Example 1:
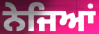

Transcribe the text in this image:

ਨੇਜਿਆਂ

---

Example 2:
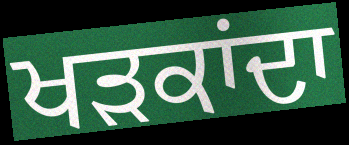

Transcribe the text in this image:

ਖੜਕਾਂਦਾ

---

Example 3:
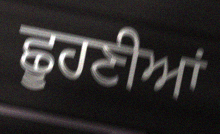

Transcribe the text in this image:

ਛੂਹਣੀਆਂ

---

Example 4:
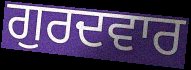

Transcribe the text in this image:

ਗੁਰਦਵਾਰ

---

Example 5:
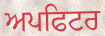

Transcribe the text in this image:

ਅਪਫਿਟਰ